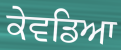
ਕੇਵਡਿਆ